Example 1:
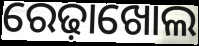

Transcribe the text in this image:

ରେଢ଼ାଖୋଲ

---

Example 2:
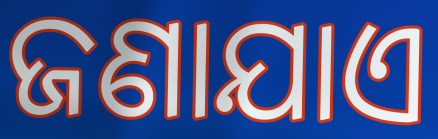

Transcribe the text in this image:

ଜଣାଯାଏ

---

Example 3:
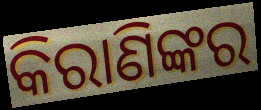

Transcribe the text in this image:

କିରାଣିଙ୍କର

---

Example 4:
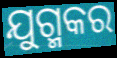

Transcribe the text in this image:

ଯୁଗ୍ମକର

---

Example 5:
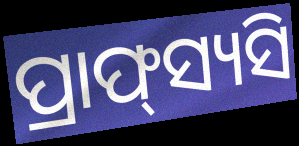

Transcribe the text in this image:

ପ୍ରାଫ୍‌ସ୍ୟସି